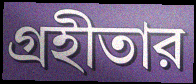
গ্রহীতার